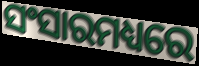
ସଂସାରମଧ୍ୟରେ